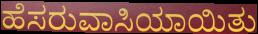
ಹೆಸರುವಾಸಿಯಾಯಿತು